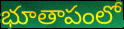
భూతాపంలో